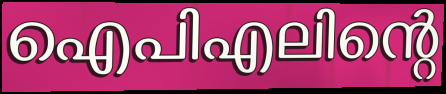
ഐപിഎലിന്റെ